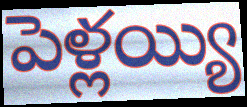
పెళ్లయ్యి